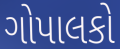
ગોપાલકો